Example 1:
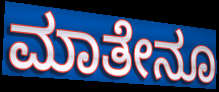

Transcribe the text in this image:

ಮಾತೇನೂ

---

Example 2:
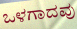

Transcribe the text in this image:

ಒಳಗಾದವು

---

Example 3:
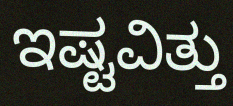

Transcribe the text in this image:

ಇಷ್ಟವಿತ್ತು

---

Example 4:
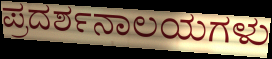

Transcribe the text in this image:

ಪ್ರದರ್ಶನಾಲಯಗಳು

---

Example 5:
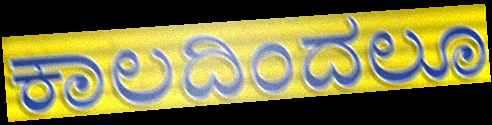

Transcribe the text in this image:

ಕಾಲದಿಂದಲೂ